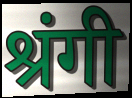
श्रंगी